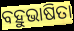
ବହୁଭାଷିତା